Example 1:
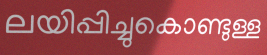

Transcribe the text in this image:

ലയിപ്പിച്ചുകൊണ്ടുള്ള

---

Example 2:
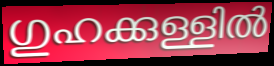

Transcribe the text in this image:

ഗുഹക്കുള്ളിൽ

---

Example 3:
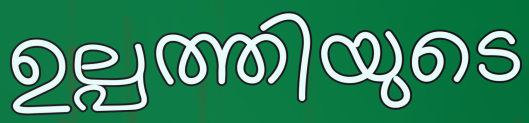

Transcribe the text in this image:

ഉല്പത്തിയുടെ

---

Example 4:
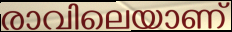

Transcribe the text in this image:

രാവിലെയാണ്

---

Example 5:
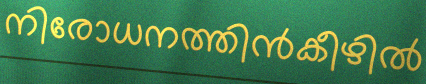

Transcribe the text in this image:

നിരോധനത്തിൻകീഴിൽ